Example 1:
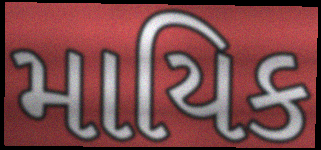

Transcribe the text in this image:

માયિક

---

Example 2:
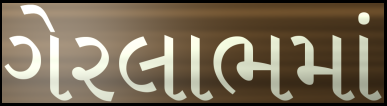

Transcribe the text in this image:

ગેરલાભમાં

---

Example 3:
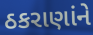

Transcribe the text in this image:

ઠકરાણાંને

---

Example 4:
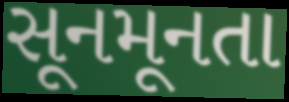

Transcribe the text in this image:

સૂનમૂનતા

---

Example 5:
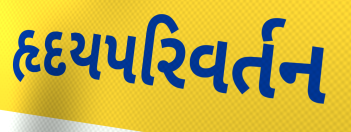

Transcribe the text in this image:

હૃદયપરિવર્તન